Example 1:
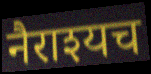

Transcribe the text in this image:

नैराश्यच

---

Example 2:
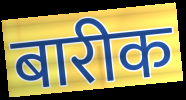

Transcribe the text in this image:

बारीक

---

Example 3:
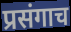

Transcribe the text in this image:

प्रसंगाच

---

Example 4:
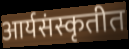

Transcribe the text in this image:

आर्यसंस्कृतीत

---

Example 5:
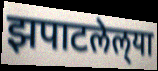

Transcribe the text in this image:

झपाटलेल्या